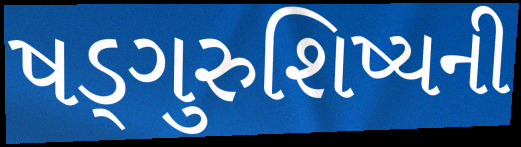
ષડ્ગુરુશિષ્યની